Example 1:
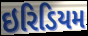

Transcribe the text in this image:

ઇરિડિયમ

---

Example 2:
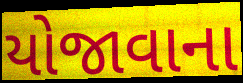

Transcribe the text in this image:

યોજાવાના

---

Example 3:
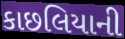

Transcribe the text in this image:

કાછલિયાની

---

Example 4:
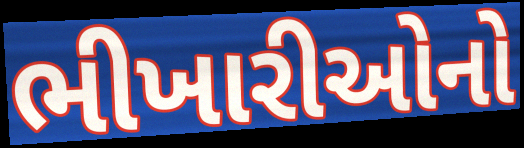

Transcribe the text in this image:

ભીખારીઓનો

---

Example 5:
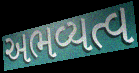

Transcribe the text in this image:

અભવ્યત્વ